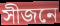
সীজনে